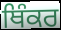
ਥਿੰਕਰ